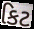
કિટ